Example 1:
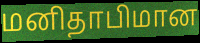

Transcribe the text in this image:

மனிதாபிமான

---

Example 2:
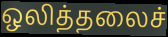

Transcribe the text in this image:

ஒலித்தலைச்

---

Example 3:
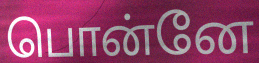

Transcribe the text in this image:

பொன்னே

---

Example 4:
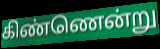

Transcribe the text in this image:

கிண்ணென்று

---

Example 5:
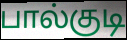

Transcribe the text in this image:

பால்குடி